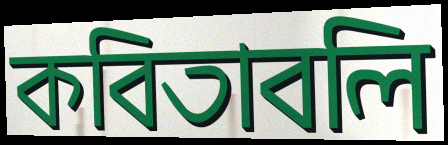
কবিতাবলি